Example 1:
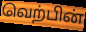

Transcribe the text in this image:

வெற்பின்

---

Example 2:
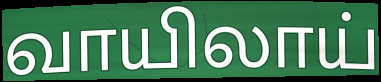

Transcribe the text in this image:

வாயிலாய்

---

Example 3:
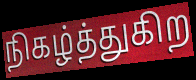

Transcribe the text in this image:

நிகழ்த்துகிற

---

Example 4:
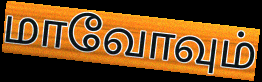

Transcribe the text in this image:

மாவோவும்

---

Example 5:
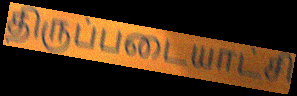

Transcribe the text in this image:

திருப்படையாட்சி